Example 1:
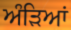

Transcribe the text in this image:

ਅੰੜਿਆਂ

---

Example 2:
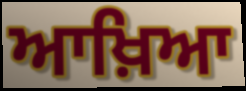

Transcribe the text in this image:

ਆਖ਼ਿਆ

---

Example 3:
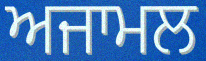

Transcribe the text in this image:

ਅਜਾਮਲ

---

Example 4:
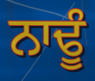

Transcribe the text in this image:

ਨਾਢੂੰ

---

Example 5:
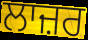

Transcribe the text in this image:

ਲਾਜ਼ਰ